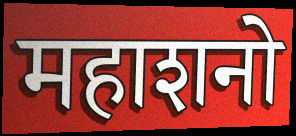
महाशनो